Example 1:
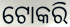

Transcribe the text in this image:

ଟୋକରି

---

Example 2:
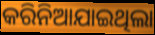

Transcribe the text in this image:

କରିନିଆଯାଇଥିଲା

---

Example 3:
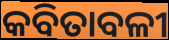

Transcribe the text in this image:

କବିତାବଳୀ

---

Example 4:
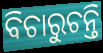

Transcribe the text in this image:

ବିଚାରୁଚନ୍ତି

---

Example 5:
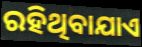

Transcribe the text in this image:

ରହିଥିବାଯାଏ